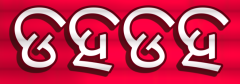
ଡହଡହ